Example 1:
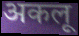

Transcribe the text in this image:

अकलू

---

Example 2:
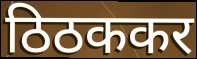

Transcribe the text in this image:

ठिठककर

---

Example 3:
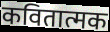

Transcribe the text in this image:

कवितात्मक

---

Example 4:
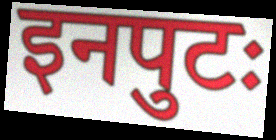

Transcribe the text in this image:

इनपुटः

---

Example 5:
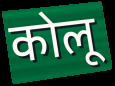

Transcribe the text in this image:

कोलू